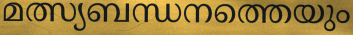
മത്സ്യബന്ധനത്തെയും